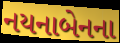
નયનાબેનના